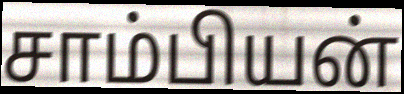
சாம்பியன்